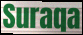
Suraqa